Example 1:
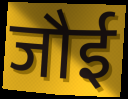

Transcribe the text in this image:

जौई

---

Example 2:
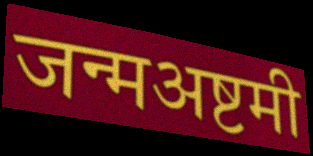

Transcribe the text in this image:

जन्मअष्टमी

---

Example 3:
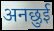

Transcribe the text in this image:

अनछुई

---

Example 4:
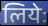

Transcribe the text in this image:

लियेः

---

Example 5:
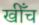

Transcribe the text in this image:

खीँच